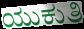
ಯುಕುತಿ